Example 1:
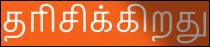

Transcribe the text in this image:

தரிசிக்கிறது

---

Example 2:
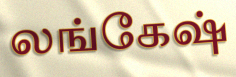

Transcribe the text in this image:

லங்கேஷ்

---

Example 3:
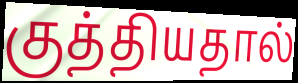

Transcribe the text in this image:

குத்தியதால்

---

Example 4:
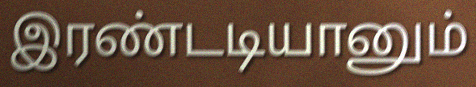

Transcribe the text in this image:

இரண்டடியானும்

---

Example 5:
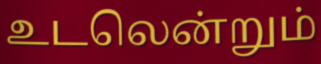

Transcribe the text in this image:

உடலென்றும்